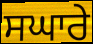
ਸਘਾਰੇ